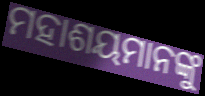
ମହାଶୟମାନଙ୍କୁ